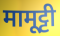
मामूट्टी